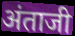
अंताजी